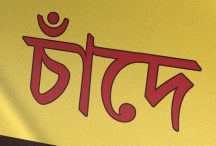
চাঁদে